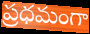
ప్రధమంగా